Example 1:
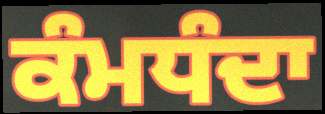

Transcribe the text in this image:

ਕੰਮਧੰਦਾ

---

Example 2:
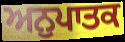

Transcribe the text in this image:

ਅਨੁਪਾਤਕ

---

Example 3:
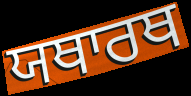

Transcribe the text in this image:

ਯਥਾਰਥ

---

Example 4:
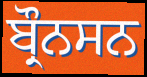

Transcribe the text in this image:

ਬ੍ਰੌਨਸਨ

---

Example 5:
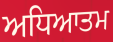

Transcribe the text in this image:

ਅਧਿਆਤਮ